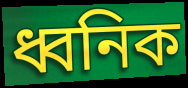
ধ্বনিক